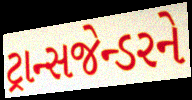
ટ્રાન્સજેન્ડરને